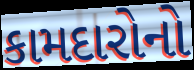
કામદારોનો